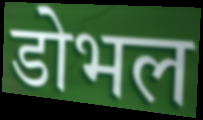
डोभल